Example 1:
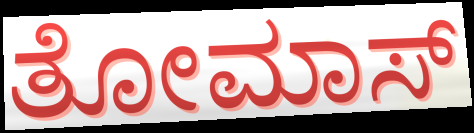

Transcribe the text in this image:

ತೋಮಾಸ್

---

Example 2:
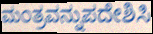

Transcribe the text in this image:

ಮಂತ್ರವನ್ನುಪದೇಶಿಸಿ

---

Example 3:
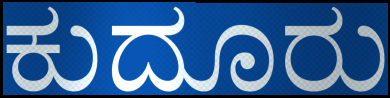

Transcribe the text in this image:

ಕುದೂರು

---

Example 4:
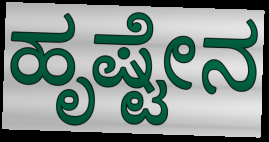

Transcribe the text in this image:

ಹೃಷ್ಟೇನ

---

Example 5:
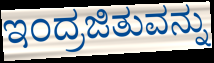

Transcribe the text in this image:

ಇಂದ್ರಜಿತುವನ್ನು